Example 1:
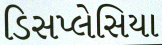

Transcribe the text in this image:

ડિસપ્લેસિયા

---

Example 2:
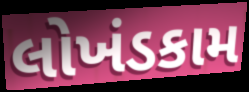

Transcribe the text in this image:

લોખંડકામ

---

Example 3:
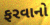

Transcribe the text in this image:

ફરવાનો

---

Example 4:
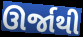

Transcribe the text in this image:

ઊર્જાથી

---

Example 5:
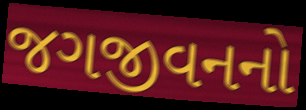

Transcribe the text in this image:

જગજીવનનો